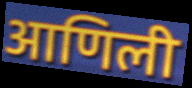
आणिली